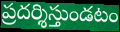
ప్రదర్శిస్తుండటం